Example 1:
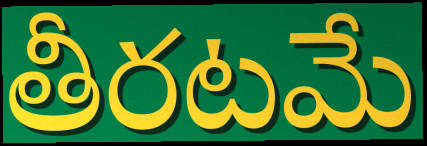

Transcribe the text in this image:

తీరటమే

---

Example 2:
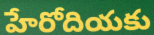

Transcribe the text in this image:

హేరోదియకు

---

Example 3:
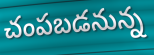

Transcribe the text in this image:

చంపబడనున్న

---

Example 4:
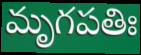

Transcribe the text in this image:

మృగపతిః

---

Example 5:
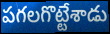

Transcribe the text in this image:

పగలగొట్టేశాడు